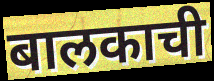
बालकाची